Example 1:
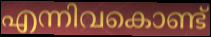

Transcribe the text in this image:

എന്നിവകൊണ്ട്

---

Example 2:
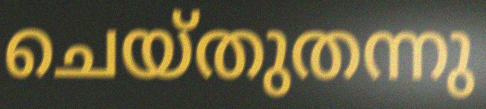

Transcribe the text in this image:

ചെയ്തുതന്നു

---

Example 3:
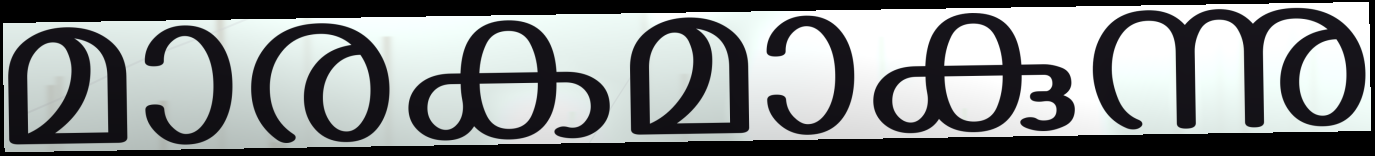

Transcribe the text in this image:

മാരകമാകുന്നു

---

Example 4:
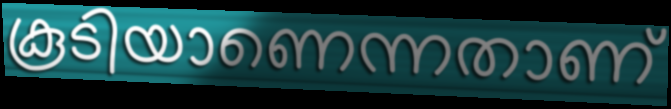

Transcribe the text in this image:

കൂടിയാണെന്നതാണ്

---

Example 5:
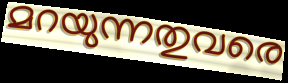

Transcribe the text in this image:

മറയുന്നതുവരെ